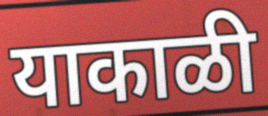
याकाळी